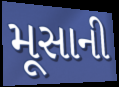
મૂસાની